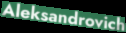
Aleksandrovich